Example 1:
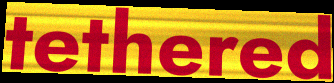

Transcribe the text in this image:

tethered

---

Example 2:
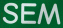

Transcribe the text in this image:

SEM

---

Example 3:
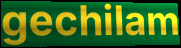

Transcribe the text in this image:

gechilam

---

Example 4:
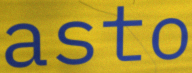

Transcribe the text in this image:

asto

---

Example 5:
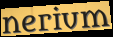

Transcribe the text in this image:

nerium